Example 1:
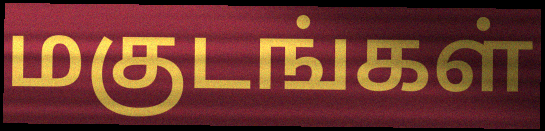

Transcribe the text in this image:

மகுடங்கள்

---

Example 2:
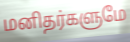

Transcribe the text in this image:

மனிதர்களுமே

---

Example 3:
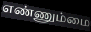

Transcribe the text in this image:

எண்ணும்மை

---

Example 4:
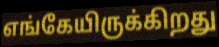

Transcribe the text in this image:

எங்கேயிருக்கிறது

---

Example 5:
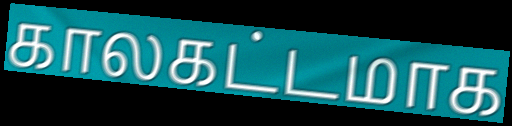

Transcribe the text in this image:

காலகட்டமாக